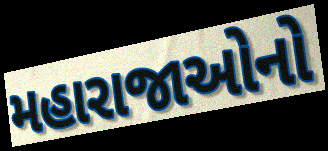
મહારાજાઓનો